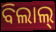
ବିଲାଲ୍